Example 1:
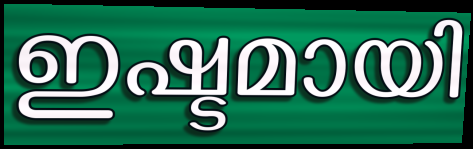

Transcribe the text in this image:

ഇഷ്ടമായി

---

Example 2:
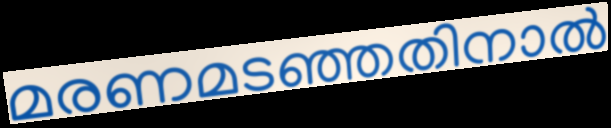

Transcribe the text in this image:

മരണമടഞ്ഞതിനാൽ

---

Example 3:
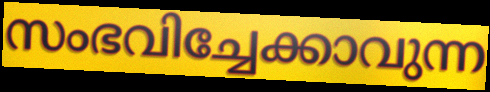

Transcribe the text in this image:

സംഭവിച്ചേക്കാവുന്ന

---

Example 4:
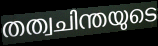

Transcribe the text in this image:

തത്വചിന്തയുടെ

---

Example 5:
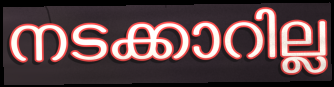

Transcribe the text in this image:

നടക്കാറില്ല